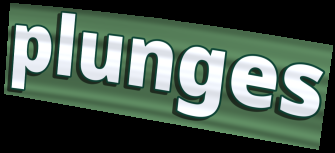
plunges